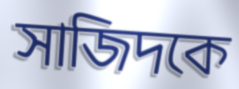
সাজিদকে